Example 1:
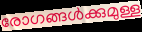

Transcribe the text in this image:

രോഗങ്ങൾക്കുമുള്ള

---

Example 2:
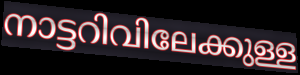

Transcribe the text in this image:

നാട്ടറിവിലേക്കുള്ള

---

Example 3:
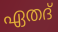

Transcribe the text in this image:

ഏതദ്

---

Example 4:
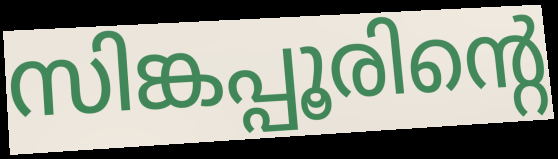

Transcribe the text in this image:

സിങ്കപ്പൂരിന്റെ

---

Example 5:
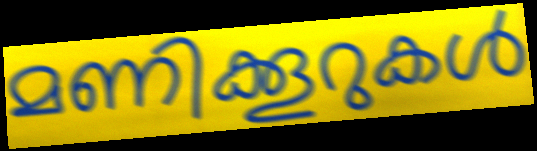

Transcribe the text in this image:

മണിക്കൂറുകൾ